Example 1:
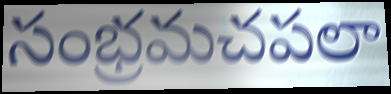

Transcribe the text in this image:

సంభ్రమచపలా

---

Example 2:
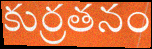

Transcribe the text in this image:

కుర్రతనం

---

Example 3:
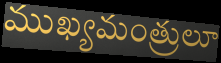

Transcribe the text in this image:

ముఖ్యమంత్రులూ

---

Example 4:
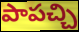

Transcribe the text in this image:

పాపచ్చి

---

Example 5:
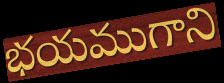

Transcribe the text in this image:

భయముగాని